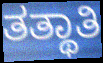
ತತ್ಥಾತಿ